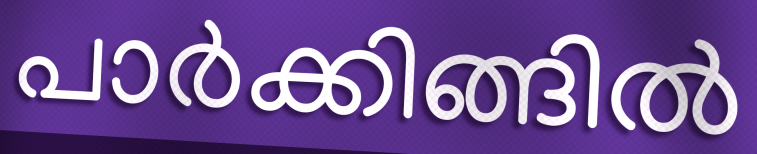
പാർക്കിങ്ങിൽ